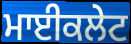
ਮਾਈਕਲੇਟ